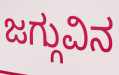
ಜಗ್ಗುವಿನ